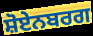
ਸ਼ੋਏਨਬਰਗ